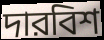
দারবিশ